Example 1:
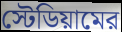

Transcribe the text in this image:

স্টেডিয়ামের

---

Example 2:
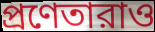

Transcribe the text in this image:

প্রণেতারাও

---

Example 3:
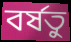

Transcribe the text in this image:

বর্ষতু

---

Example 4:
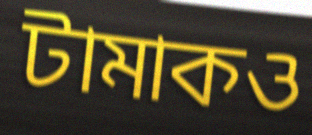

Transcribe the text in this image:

টামাকও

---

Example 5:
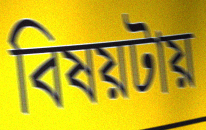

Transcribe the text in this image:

বিষয়টায়